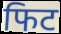
फिट